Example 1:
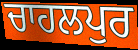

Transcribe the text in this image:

ਚਾਹਲਪੁਰ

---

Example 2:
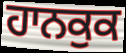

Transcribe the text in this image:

ਹਾਨਕੁਕ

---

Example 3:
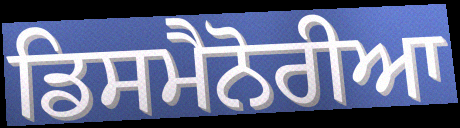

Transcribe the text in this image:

ਡਿਸਮੈਨੋਰੀਆ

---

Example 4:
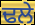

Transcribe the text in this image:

ਢਲੇ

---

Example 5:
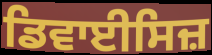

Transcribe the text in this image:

ਡਿਵਾਈਸਿਜ਼